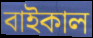
বাইকাল